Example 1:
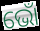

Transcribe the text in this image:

ଭୋଁ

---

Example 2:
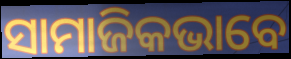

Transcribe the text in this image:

ସାମାଜିକଭାବେ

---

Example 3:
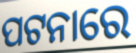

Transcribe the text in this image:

ପଟନାରେ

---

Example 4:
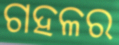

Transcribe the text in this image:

ଗହଳର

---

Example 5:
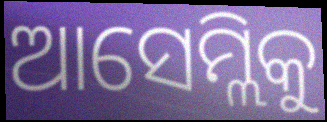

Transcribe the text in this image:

ଆସେମ୍ଲିକୁ